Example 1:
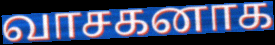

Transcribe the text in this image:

வாசகனாக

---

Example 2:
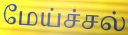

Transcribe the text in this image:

மேய்ச்சல்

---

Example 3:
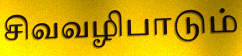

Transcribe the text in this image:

சிவவழிபாடும்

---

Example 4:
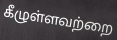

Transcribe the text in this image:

கீழுள்ளவற்றை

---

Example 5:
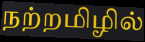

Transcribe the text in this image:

நற்றமிழில்